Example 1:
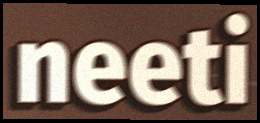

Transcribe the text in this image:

neeti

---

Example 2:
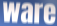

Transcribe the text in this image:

ware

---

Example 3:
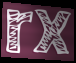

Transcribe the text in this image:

rx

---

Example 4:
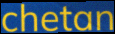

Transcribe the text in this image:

chetan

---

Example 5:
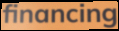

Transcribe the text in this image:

financing